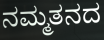
ನಮ್ಮತನದ